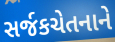
સર્જકચેતનાને